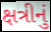
ક્ષત્રીનું